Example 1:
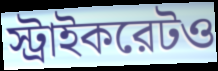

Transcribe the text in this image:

স্ট্রাইকরেটও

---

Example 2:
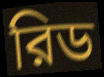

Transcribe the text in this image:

রিড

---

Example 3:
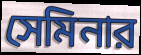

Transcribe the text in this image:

সেমিনার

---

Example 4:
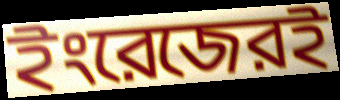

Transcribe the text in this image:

ইংরেজেরই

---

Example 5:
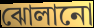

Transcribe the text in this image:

ঝোলানো